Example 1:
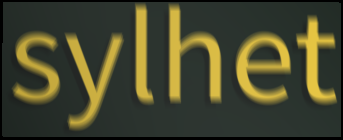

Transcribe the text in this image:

sylhet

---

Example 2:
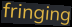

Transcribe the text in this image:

fringing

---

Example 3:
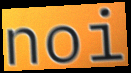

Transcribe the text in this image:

noi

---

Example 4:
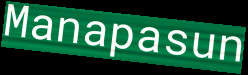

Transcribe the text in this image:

Manapasun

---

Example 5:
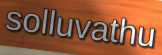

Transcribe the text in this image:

solluvathu